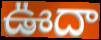
ఊదా